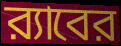
র‍্যাবের